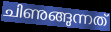
ചിണുങ്ങുന്നത്